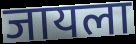
जायला